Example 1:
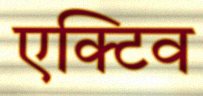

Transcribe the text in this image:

एक्टिव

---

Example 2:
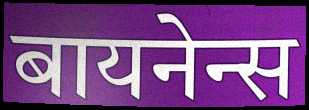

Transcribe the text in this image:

बायनेन्स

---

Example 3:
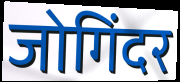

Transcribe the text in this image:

जोगिंदर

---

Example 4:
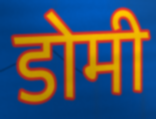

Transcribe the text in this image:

डोमी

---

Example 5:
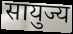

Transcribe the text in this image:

सायुज्य